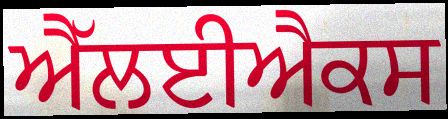
ਐੱਲਈਐਕਸ